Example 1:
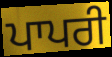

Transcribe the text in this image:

ਪਾਪਰੀ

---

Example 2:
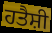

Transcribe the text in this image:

ਹਤੈਸ਼ੀ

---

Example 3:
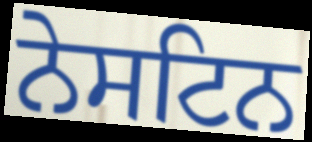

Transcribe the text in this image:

ਨੇਸਟਿਨ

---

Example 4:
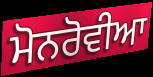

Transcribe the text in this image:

ਮੋਨਰੋਵੀਆ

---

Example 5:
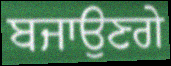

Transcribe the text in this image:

ਬਜਾਉਣਗੇ